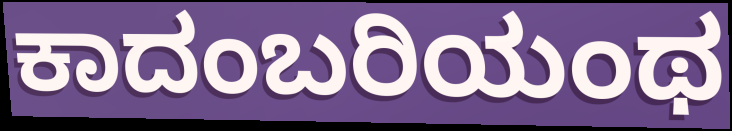
ಕಾದಂಬರಿಯಂಥ